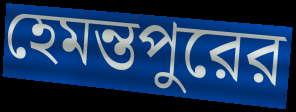
হেমন্তপুরের